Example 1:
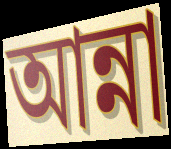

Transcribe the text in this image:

আন্না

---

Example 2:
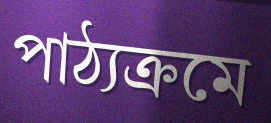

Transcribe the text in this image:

পাঠ্যক্রমে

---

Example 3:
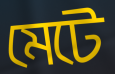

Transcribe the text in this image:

মেটে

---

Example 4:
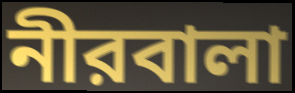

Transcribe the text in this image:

নীরবালা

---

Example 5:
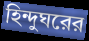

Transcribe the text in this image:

হিন্দুঘরের